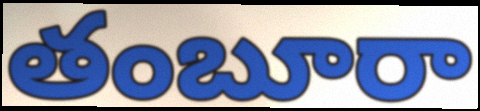
తంబూరా